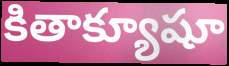
కితాక్యూషూ